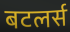
बटलर्स